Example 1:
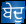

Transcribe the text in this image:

ਬੇਦੁ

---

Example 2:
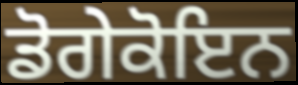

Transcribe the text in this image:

ਡੋਗੇਕੋਇਨ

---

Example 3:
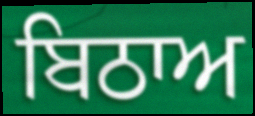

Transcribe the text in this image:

ਬਿਠਾਅ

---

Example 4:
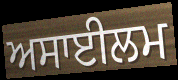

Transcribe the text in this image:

ਅਸਾਈਲਮ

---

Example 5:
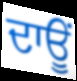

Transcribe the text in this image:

ਦਾਊਂ